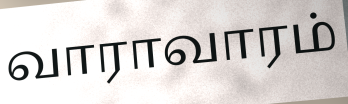
வாராவாரம்